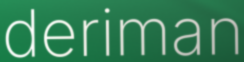
deriman